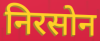
निरसोन